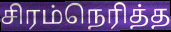
சிரம்நெரித்த